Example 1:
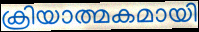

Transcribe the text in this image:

ക്രിയാത്മകമായി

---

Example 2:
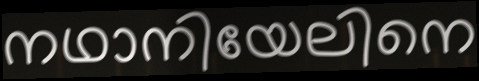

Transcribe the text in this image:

നഥാനിയേലിനെ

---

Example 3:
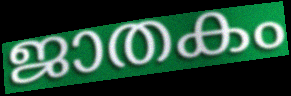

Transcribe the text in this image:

ജാതകം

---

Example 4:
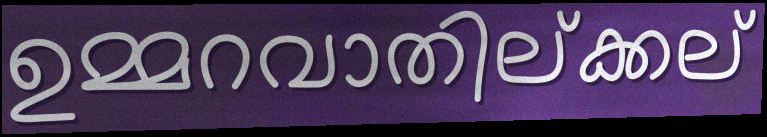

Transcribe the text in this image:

ഉമ്മറവാതില്ക്കല്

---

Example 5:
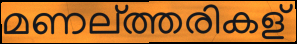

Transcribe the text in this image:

മണല്ത്തരികള്